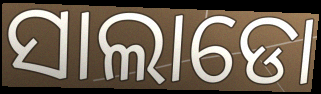
ସାଲାଡୋ